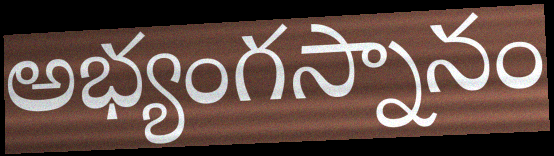
అభ్యంగస్నానం